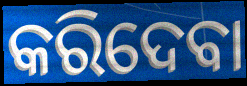
କରିଦେବା